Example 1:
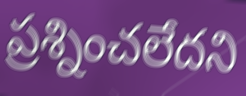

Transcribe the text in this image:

ప్రశ్నించలేదని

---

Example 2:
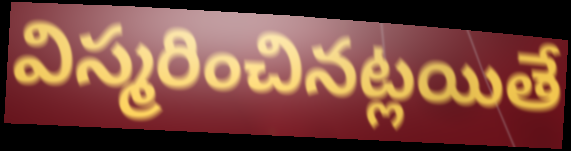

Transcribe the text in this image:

విస్మరించినట్లయితే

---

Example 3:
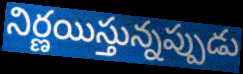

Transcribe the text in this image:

నిర్ణయిస్తున్నప్పుడు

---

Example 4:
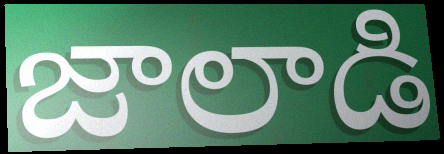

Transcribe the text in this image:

జాలాడి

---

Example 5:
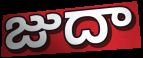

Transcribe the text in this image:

జుదా